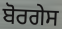
ਬੋਰਗੇਸ